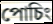
পোচিং